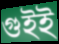
গুইই